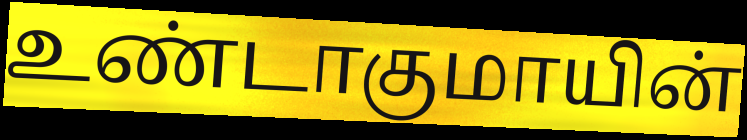
உண்டாகுமாயின்